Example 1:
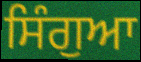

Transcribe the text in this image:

ਸਿੰਗੁਆ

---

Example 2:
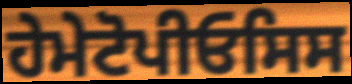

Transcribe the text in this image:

ਹੇਮੇਟੋਪੀਓਸਿਸ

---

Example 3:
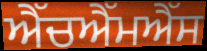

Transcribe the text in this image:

ਐੱਚਐੱਮਐੱਸ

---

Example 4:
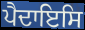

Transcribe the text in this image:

ਪੈਦਾਇਸਿ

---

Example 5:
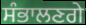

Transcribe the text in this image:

ਸੰਭਾਲਣਗੇ